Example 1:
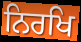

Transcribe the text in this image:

ਨਿਰਖਿ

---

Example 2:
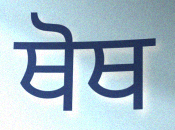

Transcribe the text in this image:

ਥੋਥ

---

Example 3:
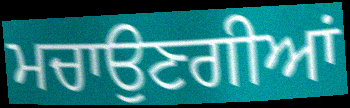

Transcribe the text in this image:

ਮਚਾਉਣਗੀਆਂ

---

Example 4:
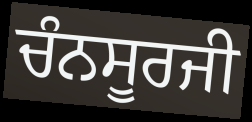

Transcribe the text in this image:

ਚੰਨਸੂਰਜੀ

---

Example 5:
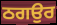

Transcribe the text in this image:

ਠਗਉਰ